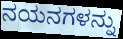
ನಯನಗಳನ್ನು